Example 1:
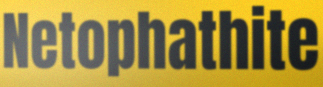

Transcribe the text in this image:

Netophathite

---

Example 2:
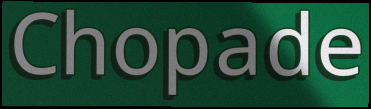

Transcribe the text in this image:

Chopade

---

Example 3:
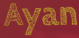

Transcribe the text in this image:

Ayan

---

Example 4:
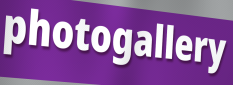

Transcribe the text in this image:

photogallery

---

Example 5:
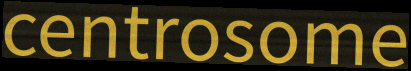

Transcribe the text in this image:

centrosome